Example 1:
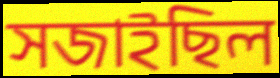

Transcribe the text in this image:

সজাইছিল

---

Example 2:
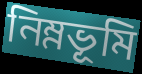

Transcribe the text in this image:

নিম্নভূমি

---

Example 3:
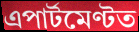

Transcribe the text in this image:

এপাৰ্টমেণ্টত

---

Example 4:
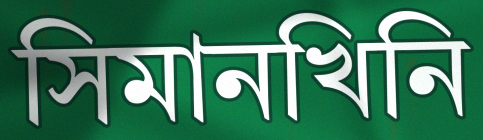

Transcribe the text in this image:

সিমানখিনি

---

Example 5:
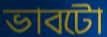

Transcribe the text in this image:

ভাবটো